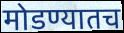
मोडण्यातच